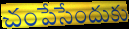
చంపేసేందుకు